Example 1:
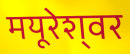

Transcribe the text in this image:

मयूरेश्वर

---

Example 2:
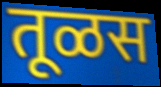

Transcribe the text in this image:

तूळस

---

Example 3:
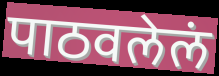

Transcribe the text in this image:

पाठवलेलं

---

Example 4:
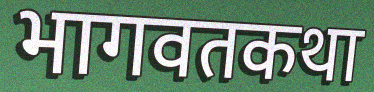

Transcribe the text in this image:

भागवतकथा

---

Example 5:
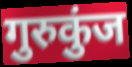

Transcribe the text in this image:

गुरुकुंज